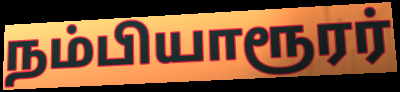
நம்பியாரூரர்